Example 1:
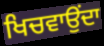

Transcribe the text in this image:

ਖਿਚਵਾਉਂਦਾ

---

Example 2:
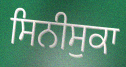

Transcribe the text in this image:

ਸਿਨੀਸੁਕਾ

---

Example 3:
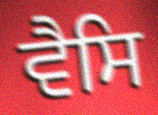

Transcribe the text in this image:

ਵੈਸਿ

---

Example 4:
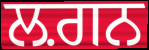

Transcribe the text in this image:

ਲ਼ਗਨ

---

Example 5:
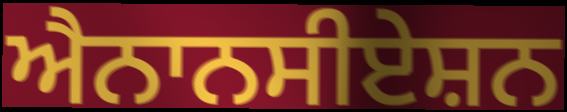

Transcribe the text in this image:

ਐਨਾਨਸੀਏਸ਼ਨ